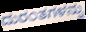
ದುರಂತಗಳನ್ನು